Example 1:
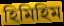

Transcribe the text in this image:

হিমিহিম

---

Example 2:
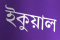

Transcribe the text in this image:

ইকুয়াল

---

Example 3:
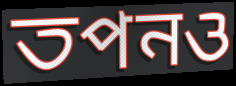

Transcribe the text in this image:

তপনও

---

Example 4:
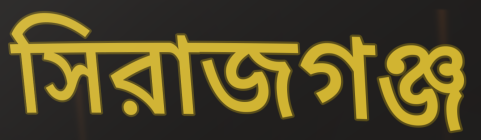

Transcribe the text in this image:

সিরাজগঞ্জ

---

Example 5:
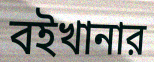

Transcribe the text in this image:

বইখানার